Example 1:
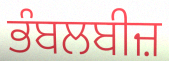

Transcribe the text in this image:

ਭੰਬਲਬੀਜ਼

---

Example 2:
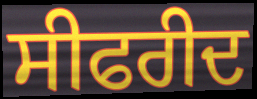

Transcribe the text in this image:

ਸੀਫਰੀਦ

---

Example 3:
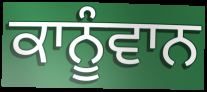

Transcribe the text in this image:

ਕਾਨੂੰਵਾਨ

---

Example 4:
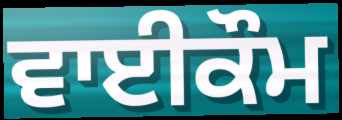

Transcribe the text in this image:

ਵਾਈਕੌਮ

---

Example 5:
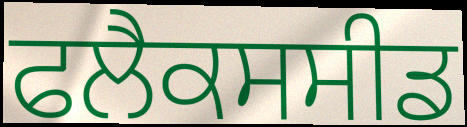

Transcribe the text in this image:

ਫਲੈਕਸਸੀਡ